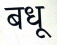
बधू